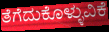
ತೆಗೆದುಕೊಳ್ಳುವಿಕೆ